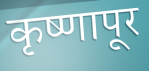
कृष्णापूर